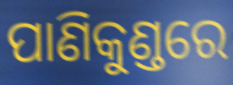
ପାଣିକୁଣ୍ଡରେ